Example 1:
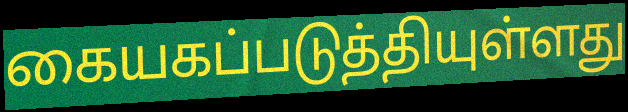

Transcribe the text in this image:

கையகப்படுத்தியுள்ளது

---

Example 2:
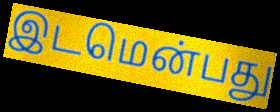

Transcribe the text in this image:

இடமென்பது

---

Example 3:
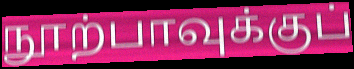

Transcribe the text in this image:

நூற்பாவுக்குப்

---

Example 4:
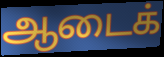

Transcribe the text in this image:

ஆடைக்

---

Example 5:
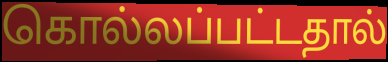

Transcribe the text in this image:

கொல்லப்பட்டதால்